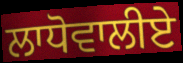
ਲਾਧੋਵਾਲੀਏ